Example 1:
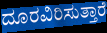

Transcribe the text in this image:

ದೂರವಿರಿಸುತ್ತಾರೆ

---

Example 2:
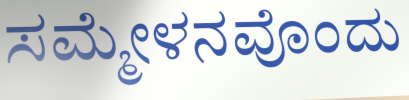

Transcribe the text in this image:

ಸಮ್ಮೇಳನವೊಂದು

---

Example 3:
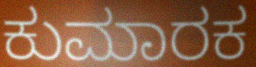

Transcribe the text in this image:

ಕುಮಾರಕ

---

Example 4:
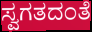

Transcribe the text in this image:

ಸ್ವಗತದಂತೆ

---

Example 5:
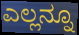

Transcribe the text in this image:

ಎಲ್ಲನ್ನೂ